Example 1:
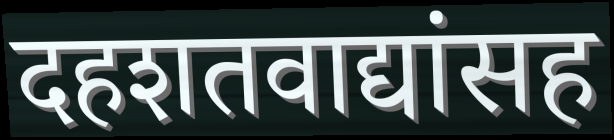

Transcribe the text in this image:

दहशतवाद्यांसह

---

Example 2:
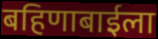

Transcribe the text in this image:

बहिणाबाईला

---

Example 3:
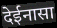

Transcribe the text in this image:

देईनासा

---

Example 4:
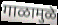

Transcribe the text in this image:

गाळामुळे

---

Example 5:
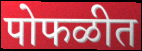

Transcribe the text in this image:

पोफळीत